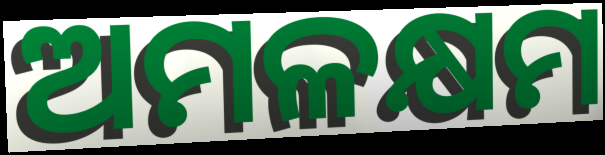
ଅମଳକ୍ଷମ